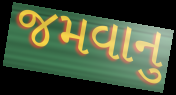
જમવાનુ